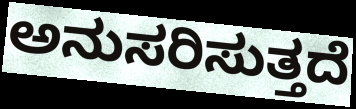
ಅನುಸರಿಸುತ್ತದೆ